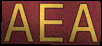
AEA